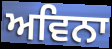
ਅਵਿਨਾ